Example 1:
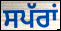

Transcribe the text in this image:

ਸਪੱਰਾਂ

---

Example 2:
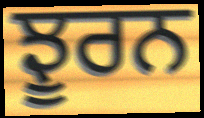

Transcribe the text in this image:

ਝੂਰਨ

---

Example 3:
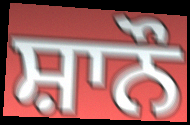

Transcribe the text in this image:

ਸ਼ਾਨੌ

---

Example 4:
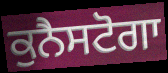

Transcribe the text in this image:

ਕੁਨੈਸਟੋਗਾ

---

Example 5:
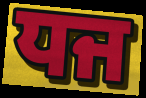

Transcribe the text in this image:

ਧਜ